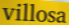
villosa